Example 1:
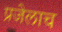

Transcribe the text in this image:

प्रजेलाच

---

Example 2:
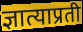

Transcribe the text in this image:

ज्ञात्याप्रती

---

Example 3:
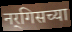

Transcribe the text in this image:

नर्गिसच्या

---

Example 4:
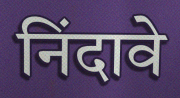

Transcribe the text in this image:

निंदावे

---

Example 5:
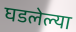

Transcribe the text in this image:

घडलेल्या